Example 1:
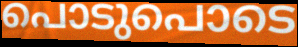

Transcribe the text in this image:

പൊടുപൊടെ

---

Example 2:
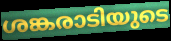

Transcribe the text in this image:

ശങ്കരാടിയുടെ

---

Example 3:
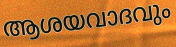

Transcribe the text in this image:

ആശയവാദവും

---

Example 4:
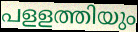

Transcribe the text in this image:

പളളത്തിയും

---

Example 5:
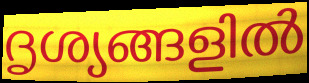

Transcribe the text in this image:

ദൃശ്യങ്ങളിൽ